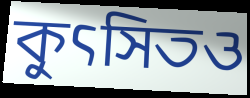
কুৎসিতও